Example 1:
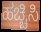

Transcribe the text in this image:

ಹಚ್ಚಿಸಿ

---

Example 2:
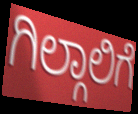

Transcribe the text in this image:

ಗಿಲ್ಗಾಲಿಗೆ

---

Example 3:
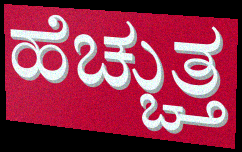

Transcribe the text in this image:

ಹೆಚ್ಚುತ್ತ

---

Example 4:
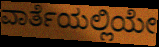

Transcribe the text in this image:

ವಾರ್ತೆಯಲ್ಲಿಯೇ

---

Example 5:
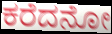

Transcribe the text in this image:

ಕರೆದನೋ